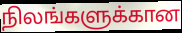
நிலங்களுக்கான